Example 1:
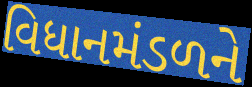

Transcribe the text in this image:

વિધાનમંડળને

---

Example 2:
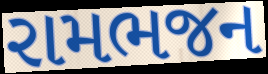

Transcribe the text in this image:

રામભજન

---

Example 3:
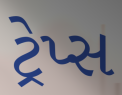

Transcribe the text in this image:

ટ્રેપ્સ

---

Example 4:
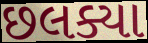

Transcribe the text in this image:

છલક્યા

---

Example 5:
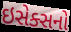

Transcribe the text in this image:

ઇસેક્સનો